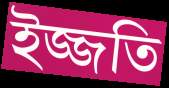
ইজ্জতি